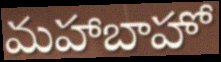
మహాబాహో